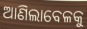
ଆଣିଲାବେଳକୁ